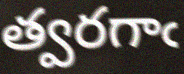
త్వరగాఁ